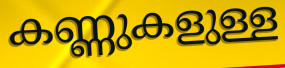
കണ്ണുകളുള്ള